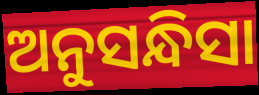
ଅନୁସନ୍ଧିସା